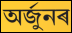
অৰ্জুনৰ